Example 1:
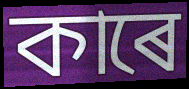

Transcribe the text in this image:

কাৰে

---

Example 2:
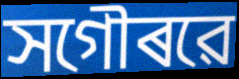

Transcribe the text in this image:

সগৌৰৱে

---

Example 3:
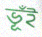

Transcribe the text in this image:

ভূঁই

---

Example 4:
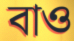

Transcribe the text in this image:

বাও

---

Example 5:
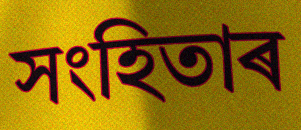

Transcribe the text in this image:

সংহিতাৰ